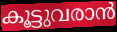
കൂട്ടുവരാൻ